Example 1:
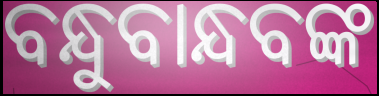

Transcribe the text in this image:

ବନ୍ଧୁବାନ୍ଧବଙ୍କ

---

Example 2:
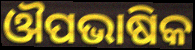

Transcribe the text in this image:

ଔପଭାଷିକ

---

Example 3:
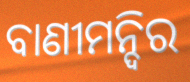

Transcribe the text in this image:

ବାଣୀମନ୍ଦିର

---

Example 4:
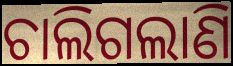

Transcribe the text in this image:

ଚାଲିଗଲାଣି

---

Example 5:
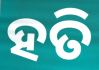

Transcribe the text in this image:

ହତି